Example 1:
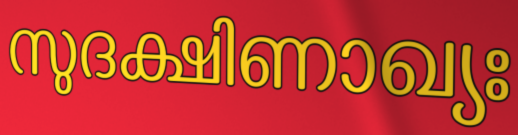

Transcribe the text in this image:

സുദക്ഷിണാഖ്യഃ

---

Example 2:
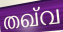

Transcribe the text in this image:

തഖ്‌വ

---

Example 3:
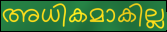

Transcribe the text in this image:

അധികമാകില്ല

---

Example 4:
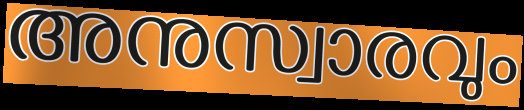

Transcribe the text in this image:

അനുസ്വാരവും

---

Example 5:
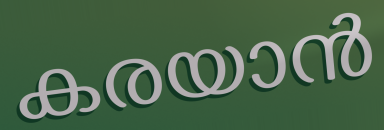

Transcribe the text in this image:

കരയാൻ